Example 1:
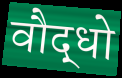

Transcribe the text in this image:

वौद्धो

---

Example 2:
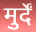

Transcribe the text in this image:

मुर्दें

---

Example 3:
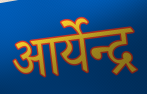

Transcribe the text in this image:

आर्येन्द्र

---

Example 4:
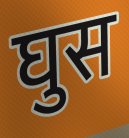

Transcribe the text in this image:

घुस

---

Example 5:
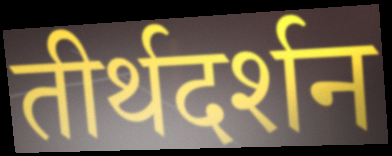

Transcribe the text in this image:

तीर्थदर्शन